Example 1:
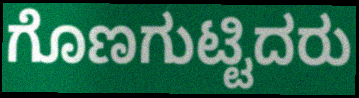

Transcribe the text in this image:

ಗೊಣಗುಟ್ಟಿದರು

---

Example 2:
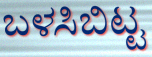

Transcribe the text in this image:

ಬಳಸಿಬಿಟ್ಟ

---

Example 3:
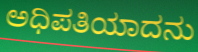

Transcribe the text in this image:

ಅಧಿಪತಿಯಾದನು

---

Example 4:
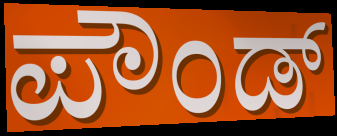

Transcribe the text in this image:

ಪೌಂಡ್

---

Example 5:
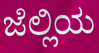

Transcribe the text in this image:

ಜೆಲ್ಲಿಯ